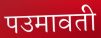
पउमावती